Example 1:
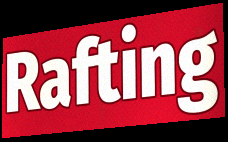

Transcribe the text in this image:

Rafting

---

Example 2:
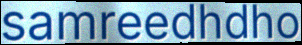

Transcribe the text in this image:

samreedhdho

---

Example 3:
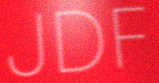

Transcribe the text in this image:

JDF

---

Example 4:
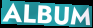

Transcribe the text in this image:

ALBUM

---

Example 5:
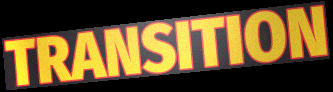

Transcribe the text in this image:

TRANSITION